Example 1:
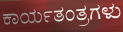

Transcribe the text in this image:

ಕಾರ್ಯತಂತ್ರಗಳು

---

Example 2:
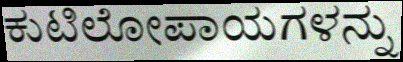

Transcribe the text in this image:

ಕುಟಿಲೋಪಾಯಗಳನ್ನು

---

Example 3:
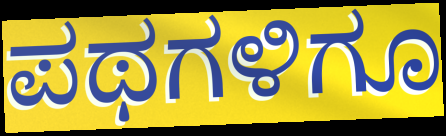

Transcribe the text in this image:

ಪಥಗಳಿಗೂ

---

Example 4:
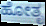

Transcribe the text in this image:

ಹೋತೃ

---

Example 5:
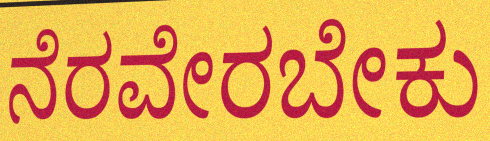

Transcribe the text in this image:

ನೆರವೇರಬೇಕು